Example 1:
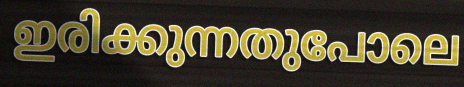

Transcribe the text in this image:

ഇരിക്കുന്നതുപോലെ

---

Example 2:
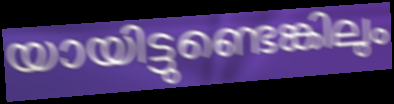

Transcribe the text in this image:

യായിട്ടുണ്ടെങ്കിലും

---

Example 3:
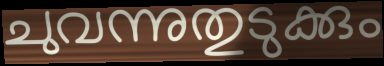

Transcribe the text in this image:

ചുവന്നുതുടുക്കും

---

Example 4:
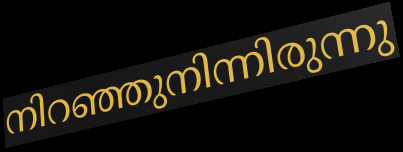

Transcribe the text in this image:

നിറഞ്ഞുനിന്നിരുന്നു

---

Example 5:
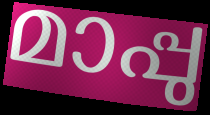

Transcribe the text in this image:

മാപ്പു